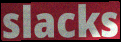
slacks